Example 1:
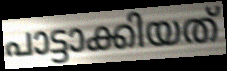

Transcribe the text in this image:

പാട്ടാക്കിയത്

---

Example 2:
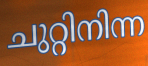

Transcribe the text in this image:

ചുറ്റിനിന്ന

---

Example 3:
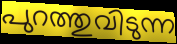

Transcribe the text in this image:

പുറത്തുവിടുന്ന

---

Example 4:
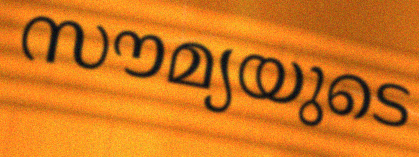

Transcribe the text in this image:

സൗമ്യയുടെ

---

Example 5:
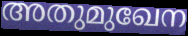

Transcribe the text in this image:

അതുമുഖേന